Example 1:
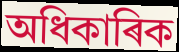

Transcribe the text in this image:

অধিকাৰিক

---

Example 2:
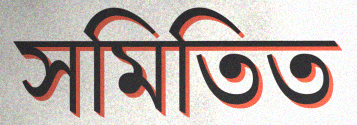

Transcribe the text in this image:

সমিতিত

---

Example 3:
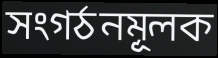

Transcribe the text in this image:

সংগঠনমূলক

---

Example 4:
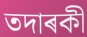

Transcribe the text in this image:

তদাৰকী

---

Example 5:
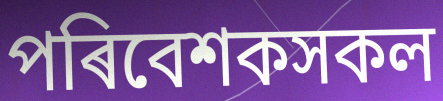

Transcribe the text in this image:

পৰিবেশকসকল